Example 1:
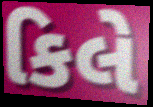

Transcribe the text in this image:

કિલે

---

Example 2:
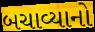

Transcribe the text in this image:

બચાવ્યાનો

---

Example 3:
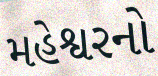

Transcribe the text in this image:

મહેશ્વરનો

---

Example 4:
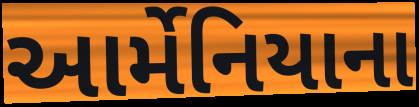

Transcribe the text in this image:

આર્મેનિયાના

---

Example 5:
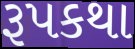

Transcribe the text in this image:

રૂપકથા